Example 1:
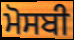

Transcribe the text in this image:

ਮੋਸਬੀ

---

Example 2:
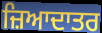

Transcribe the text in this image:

ਜ਼ਿਆਦਾਤਰ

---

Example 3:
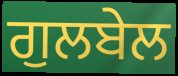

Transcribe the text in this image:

ਗੁਲਬੇਲ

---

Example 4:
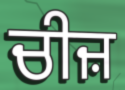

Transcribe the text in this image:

ਚੀਜ਼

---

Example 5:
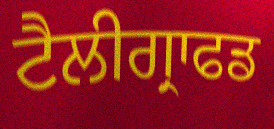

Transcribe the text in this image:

ਟੈਲੀਗ੍ਰਾਫਡ